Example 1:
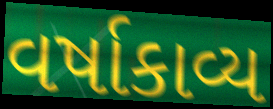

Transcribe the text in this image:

વર્ષાકાવ્ય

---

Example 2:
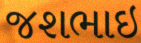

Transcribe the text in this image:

જશભાઇ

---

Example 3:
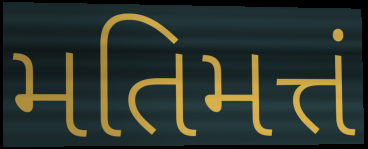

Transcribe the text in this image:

મતિમત્તં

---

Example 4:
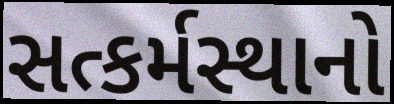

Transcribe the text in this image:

સત્કર્મસ્થાનો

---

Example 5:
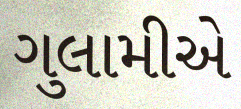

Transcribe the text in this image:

ગુલામીએ